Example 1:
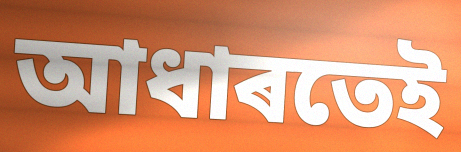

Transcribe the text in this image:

আধাৰতেই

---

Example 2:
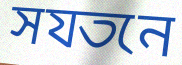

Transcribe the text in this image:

সযতনে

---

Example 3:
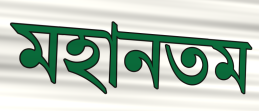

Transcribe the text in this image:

মহানতম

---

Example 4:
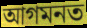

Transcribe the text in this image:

আগমনত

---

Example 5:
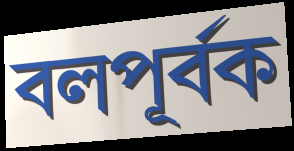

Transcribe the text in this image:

বলপূৰ্বক